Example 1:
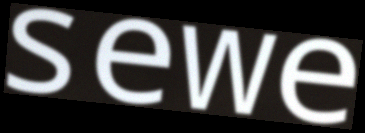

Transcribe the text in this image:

sewe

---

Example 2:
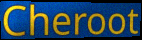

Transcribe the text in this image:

Cheroot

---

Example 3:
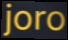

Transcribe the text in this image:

joro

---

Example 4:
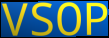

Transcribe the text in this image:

VSOP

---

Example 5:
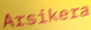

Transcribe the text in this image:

Arsikera